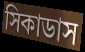
সিকাডাস